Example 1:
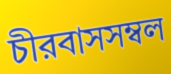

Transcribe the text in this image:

চীরবাসসম্বল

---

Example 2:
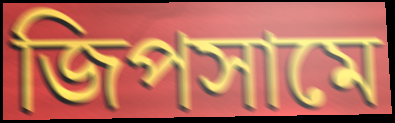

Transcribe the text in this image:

জিপসামে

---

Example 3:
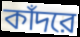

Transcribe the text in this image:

কাঁদরে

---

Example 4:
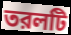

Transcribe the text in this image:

তরলটি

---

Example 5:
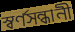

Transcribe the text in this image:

স্বর্ণসন্ধানী